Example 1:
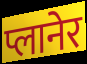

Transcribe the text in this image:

प्लानेर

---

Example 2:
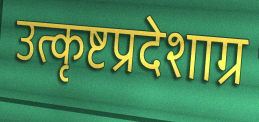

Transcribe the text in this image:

उत्कृष्टप्रदेशाग्र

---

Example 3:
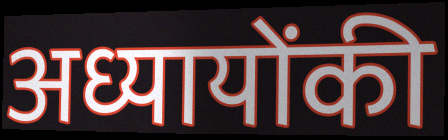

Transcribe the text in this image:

अध्यायोंकी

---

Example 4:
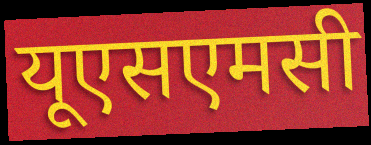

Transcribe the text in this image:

यूएसएमसी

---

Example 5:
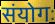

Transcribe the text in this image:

संयोगः